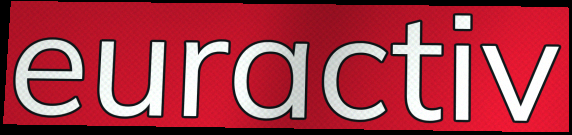
euractiv